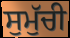
ਸੁਮੁੱਚੀ